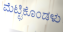
ಮೆಟ್ಟಿಕೊಂಡಳು